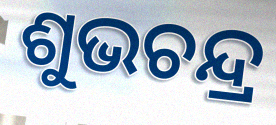
ଶୁଭଚନ୍ଦ୍ର